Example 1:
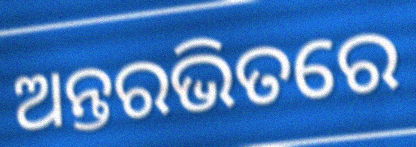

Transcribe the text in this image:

ଅନ୍ତରଭିତରେ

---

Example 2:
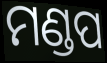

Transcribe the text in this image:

ମଣ୍ଡପ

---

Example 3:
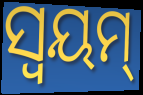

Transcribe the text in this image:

ସ୍ୱୟମ୍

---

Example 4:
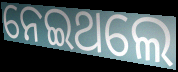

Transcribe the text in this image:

ନେଇଥଲେ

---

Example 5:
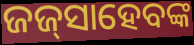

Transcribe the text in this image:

ଜଜ୍‍ସାହେବଙ୍କ